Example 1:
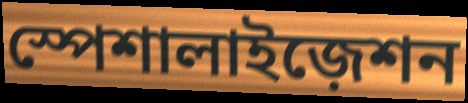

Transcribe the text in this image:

স্পেশালাইজ়েশন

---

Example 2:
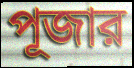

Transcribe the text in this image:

পূজার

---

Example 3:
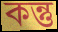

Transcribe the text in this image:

কন্তু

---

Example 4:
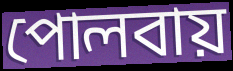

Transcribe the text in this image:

পোলবায়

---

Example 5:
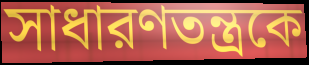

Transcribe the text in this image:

সাধারণতন্ত্রকে